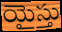
యైస్తు